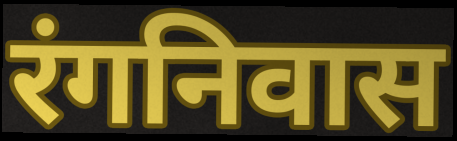
रंगनिवास